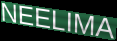
NEELIMA